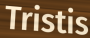
Tristis